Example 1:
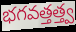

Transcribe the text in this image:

భగవత్తత్త్వ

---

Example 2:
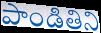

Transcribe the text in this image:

పాండితిని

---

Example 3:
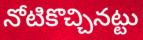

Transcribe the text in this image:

నోటికొచ్చినట్టు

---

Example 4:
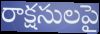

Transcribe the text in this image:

రాక్షసులపై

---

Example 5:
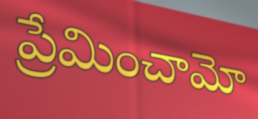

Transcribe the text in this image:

ప్రేమించామో